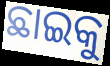
ଛାଇକୁ